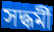
সদ্ধর্মী